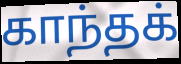
காந்தக்